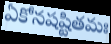
ఏకోనషష్టితమః